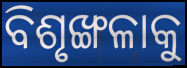
ବିଶୃଙ୍ଖଳାକୁ